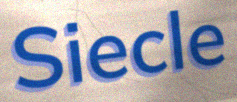
Siecle